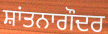
ਸ਼ਾਂਤਨਾਗੌਦਰ